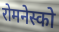
रोमनेस्को